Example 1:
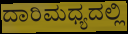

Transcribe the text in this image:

ದಾರಿಮಧ್ಯದಲ್ಲಿ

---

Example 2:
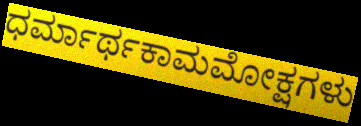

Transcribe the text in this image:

ಧರ್ಮಾರ್ಥಕಾಮಮೋಕ್ಷಗಳು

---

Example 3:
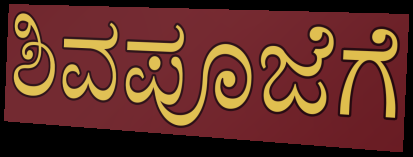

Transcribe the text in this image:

ಶಿವಪೂಜೆಗೆ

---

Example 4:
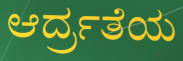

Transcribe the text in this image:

ಆರ್ದ್ರತೆಯ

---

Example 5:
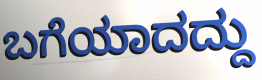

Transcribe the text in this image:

ಬಗೆಯಾದದ್ದು